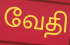
வேதி